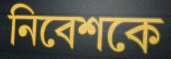
নিবেশকে